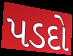
પડદો